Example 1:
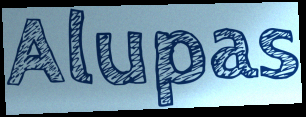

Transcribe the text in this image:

Alupas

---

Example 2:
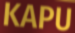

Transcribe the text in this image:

KAPU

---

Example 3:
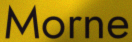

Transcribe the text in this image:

Morne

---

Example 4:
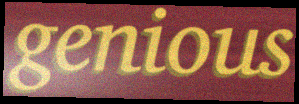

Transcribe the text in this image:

genious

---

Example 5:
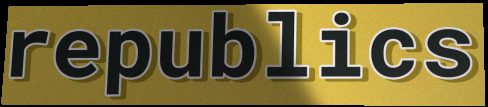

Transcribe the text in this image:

republics